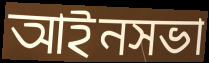
আইনসভা